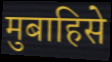
मुबाहिसे